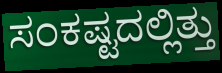
ಸಂಕಷ್ಟದಲ್ಲಿತ್ತು